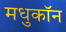
मधुकॉन